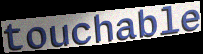
touchable